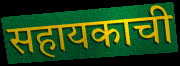
सहायकाची